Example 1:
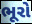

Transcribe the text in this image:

ભૂરો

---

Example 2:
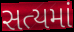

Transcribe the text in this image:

સત્યમાં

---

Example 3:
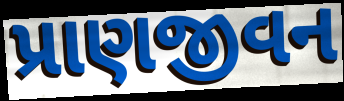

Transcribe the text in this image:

પ્રાણજીવન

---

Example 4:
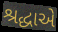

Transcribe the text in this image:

શ્રદ્ધાએ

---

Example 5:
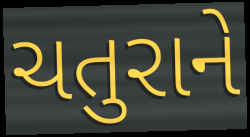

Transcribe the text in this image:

ચતુરાને